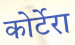
कोर्टेरा